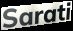
Sarati